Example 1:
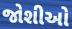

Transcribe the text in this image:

જોશીઓ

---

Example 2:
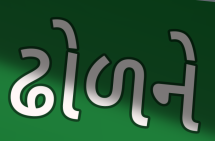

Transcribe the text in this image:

ઢોળને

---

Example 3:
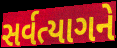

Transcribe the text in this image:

સર્વત્યાગને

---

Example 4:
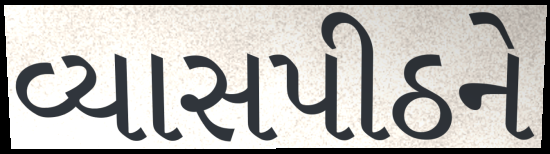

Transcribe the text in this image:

વ્યાસપીઠને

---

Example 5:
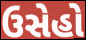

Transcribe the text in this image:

ઉસેહો